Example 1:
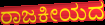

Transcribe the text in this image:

ರಾಜಕೀಯದ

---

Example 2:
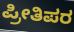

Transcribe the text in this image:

ಪ್ರೀತಿಪರ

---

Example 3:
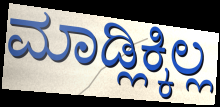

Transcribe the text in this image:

ಮಾಡ್ಲಿಕ್ಕಿಲ್ಲ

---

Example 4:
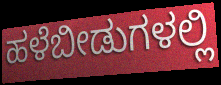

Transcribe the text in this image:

ಹಳೆಬೀಡುಗಳಲ್ಲಿ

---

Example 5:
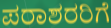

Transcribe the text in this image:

ಪರಾಶರರಿಗೆ